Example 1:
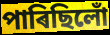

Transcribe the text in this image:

পাৰিছিলোঁ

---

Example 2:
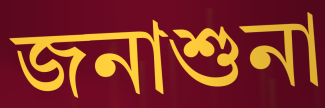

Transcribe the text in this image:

জনাশুনা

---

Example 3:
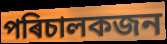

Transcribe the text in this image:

পৰিচালকজন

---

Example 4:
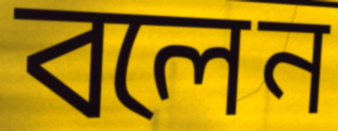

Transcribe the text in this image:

বলেন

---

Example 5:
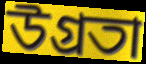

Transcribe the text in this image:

উগ্ৰতা